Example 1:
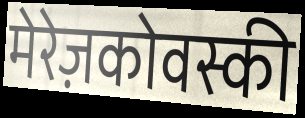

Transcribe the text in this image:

मेरेज़कोवस्की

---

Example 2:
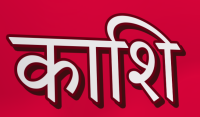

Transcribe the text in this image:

काशि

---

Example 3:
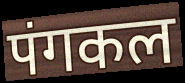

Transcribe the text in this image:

पंगकल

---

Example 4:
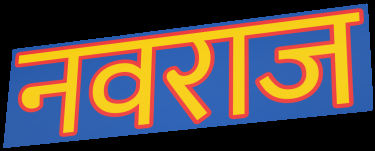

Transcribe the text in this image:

नवराज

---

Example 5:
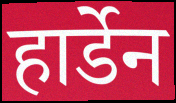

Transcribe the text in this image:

हार्डेन